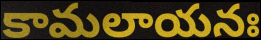
కామలాయనః